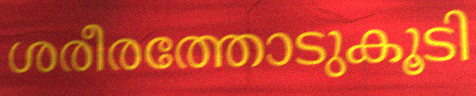
ശരീരത്തോടുകൂടി